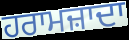
ਹਰਾਮਜ਼ਾਦਾ